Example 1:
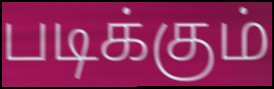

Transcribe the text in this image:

படிக்கும்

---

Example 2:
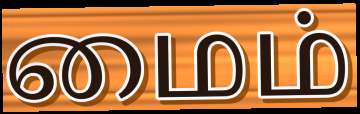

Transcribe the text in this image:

மைம்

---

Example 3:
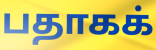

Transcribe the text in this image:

பதாகக்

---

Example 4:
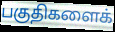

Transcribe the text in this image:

பகுதிகளைக்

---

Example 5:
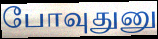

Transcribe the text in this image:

போவுதுனு